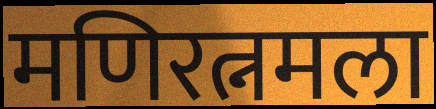
मणिरत्नमला